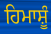
ਹਿਮਾਸ਼ੂੰ